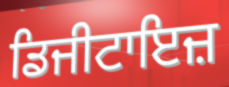
ਡਿਜੀਟਾਇਜ਼